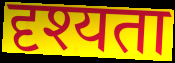
दृश्यता